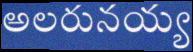
అలరునయ్య